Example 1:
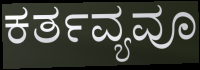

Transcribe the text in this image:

ಕರ್ತವ್ಯವೂ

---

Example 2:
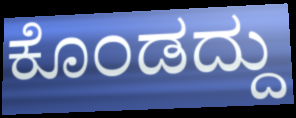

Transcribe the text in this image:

ಕೊಂಡದ್ದು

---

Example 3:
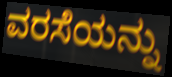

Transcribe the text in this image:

ವರಸೆಯನ್ನು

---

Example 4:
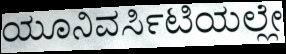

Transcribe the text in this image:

ಯೂನಿವರ್ಸಿಟಿಯಲ್ಲೇ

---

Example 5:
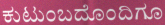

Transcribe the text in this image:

ಕುಟುಂಬದೊಂದಿಗೂ